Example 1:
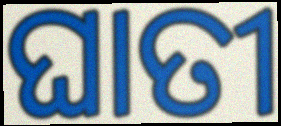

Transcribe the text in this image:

ଘାତୀ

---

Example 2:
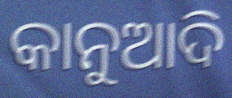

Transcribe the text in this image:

କାନୁଆଦି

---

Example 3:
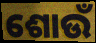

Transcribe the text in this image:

ଶୋଉଁ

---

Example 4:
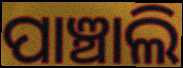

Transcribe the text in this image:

ପାଞ୍ଚାଲି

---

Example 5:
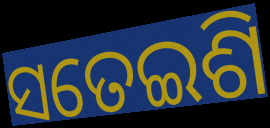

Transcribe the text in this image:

ସତେଇଶି